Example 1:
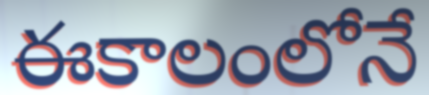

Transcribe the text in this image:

ఈకాలంలోనే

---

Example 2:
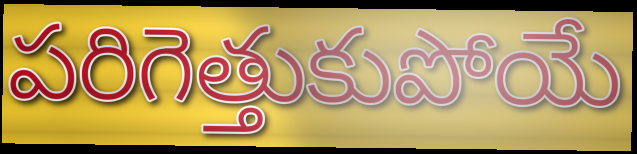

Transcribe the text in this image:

పరిగెత్తుకుపోయే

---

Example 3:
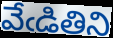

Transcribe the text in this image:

వేఁడితిని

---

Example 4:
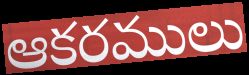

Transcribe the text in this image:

ఆకరములు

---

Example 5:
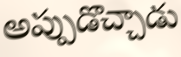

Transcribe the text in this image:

అప్పుడొచ్చాడు